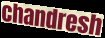
chandresh